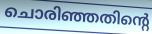
ചൊരിഞ്ഞതിന്റെ